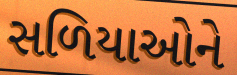
સળિયાઓને